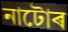
নাটোৰ